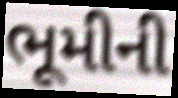
ભૂમીની